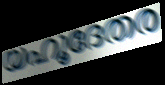
യഹൂദേതര